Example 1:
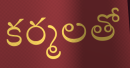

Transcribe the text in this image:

కర్మలతో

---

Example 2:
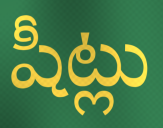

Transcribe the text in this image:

షీట్లు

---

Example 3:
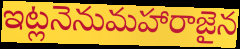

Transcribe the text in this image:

ఇట్లనెనుమహారాజైన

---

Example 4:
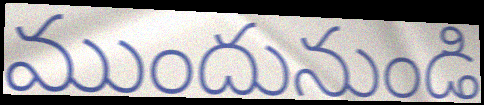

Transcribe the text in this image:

ముందునుండి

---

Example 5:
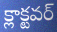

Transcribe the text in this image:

క్లాక్టవర్